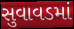
સુવાવડમાં